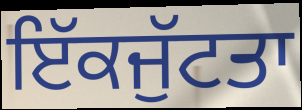
ਇੱਕਜੁੱਟਤਾ